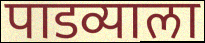
पाडव्याला